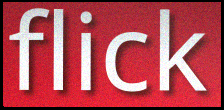
flick